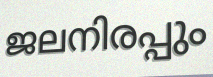
ജലനിരപ്പും